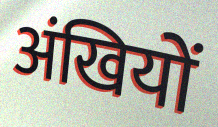
अंखियों